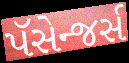
પૅસેન્જર્સ